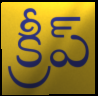
క్రీప్